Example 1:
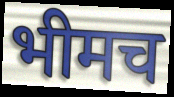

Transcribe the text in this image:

भीमच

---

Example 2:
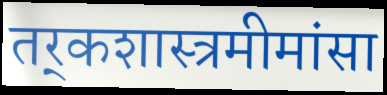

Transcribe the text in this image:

तर्कशास्त्रमीमांसा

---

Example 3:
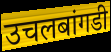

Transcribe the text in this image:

उचलबांगडी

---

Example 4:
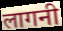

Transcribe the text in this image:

लागनी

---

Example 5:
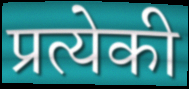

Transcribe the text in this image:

प्रत्येकी